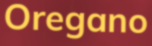
Oregano